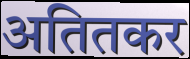
अतितकर